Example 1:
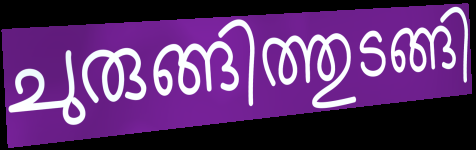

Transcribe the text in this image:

ചുരുങ്ങിത്തുടങ്ങി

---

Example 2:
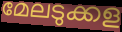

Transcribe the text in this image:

മേലടുക്കള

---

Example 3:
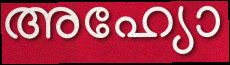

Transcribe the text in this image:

അഹ്യോ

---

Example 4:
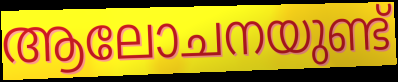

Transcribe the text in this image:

ആലോചനയുണ്ട്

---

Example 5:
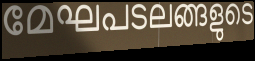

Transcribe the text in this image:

മേഘപടലങ്ങളുടെ